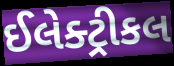
ઈલેક્ટ્રીકલ